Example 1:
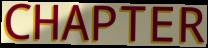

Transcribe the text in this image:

CHAPTER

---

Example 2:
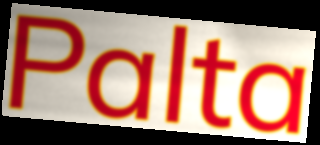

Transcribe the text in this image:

Palta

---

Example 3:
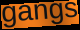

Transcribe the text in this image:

gangs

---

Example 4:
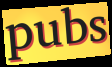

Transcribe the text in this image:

pubs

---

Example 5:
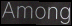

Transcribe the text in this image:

Among